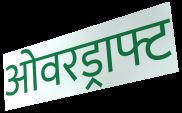
ओवरड्राफ्ट